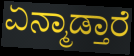
ಏನ್ಮಾಡ್ತಾರೆ